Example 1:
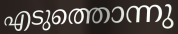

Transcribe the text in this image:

എടുത്തൊന്നു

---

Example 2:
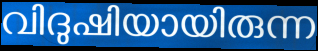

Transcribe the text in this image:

വിദുഷിയായിരുന്ന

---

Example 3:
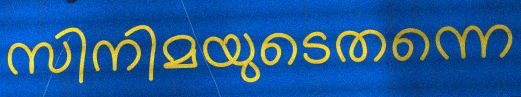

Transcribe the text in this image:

സിനിമയുടെതന്നെ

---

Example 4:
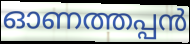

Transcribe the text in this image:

ഓണത്തപ്പൻ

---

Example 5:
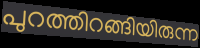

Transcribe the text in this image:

പുറത്തിറങ്ങിയിരുന്ന